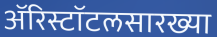
ॲरिस्टॉटलसारख्या